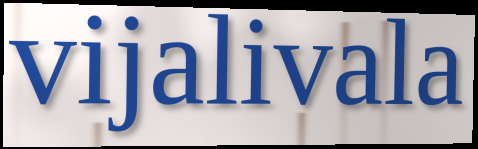
vijalivala